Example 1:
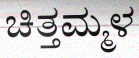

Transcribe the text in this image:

ಚಿತ್ತಮ್ಮಳ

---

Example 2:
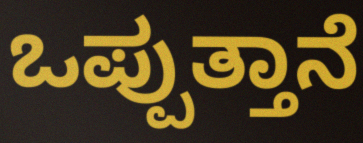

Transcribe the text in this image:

ಒಪ್ಪುತ್ತಾನೆ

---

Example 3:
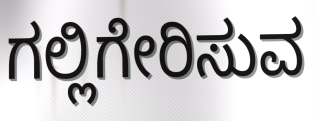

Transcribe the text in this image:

ಗಲ್ಲಿಗೇರಿಸುವ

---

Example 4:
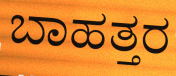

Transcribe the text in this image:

ಬಾಹತ್ತರ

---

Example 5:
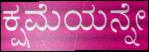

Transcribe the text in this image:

ಕ್ಷಮೆಯನ್ನೇ